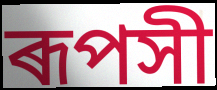
ৰূপসী